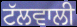
ਟੱਲਵਾਲੀ